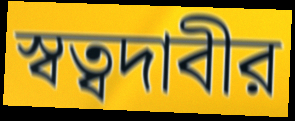
স্বত্বদাবীর